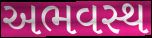
અભવસ્થ